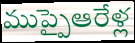
ముప్పైఆరేళ్ల